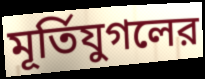
মূর্তিযুগলের